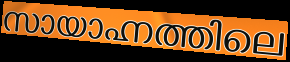
സായാഹ്നത്തിലെ